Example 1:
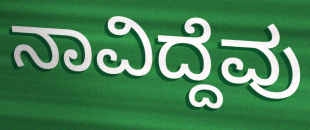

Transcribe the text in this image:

ನಾವಿದ್ದೆವು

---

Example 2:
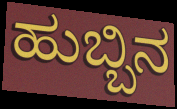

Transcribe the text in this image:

ಹುಬ್ಬಿನ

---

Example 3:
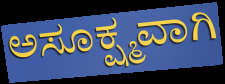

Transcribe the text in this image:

ಅಸೂಕ್ಷ್ಮವಾಗಿ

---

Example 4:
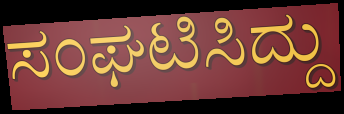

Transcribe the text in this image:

ಸಂಘಟಿಸಿದ್ದು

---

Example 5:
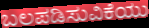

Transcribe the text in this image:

ಬಲಪಡಿಸುವಿಕೆಯು